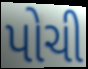
પોચી